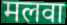
मलवा